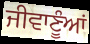
ਜੀਵਾਣੂੰਆਂ